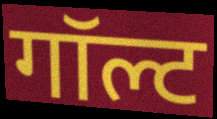
गॉल्ट